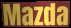
Mazda